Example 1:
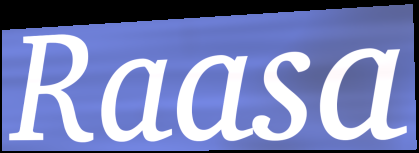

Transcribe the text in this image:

Raasa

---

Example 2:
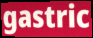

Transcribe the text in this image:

gastric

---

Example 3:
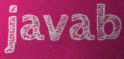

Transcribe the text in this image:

javab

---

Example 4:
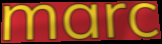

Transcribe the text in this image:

marc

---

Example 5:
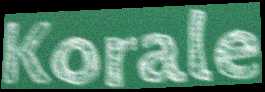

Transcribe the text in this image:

Korale